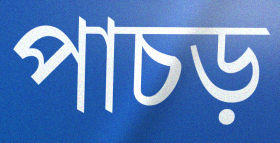
পাচড়